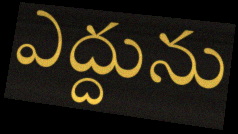
ఎద్దును